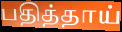
பதித்தாய்